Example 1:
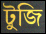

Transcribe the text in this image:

টুজি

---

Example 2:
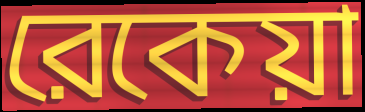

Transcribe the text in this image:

রেকেয়া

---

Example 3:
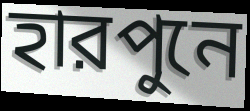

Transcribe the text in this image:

হারপুনে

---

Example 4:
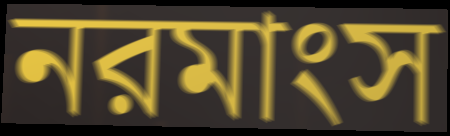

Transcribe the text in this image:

নরমাংস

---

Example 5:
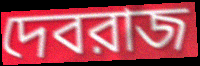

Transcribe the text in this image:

দেবরাজ